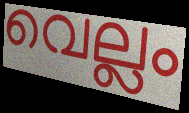
വെല്ലം